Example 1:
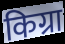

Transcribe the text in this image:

किग्रा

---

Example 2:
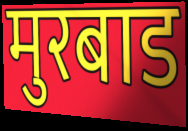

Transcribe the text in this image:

मुरबाड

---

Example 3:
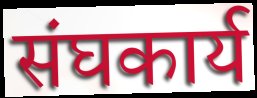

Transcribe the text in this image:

संघकार्य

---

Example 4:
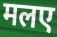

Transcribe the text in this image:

मलए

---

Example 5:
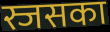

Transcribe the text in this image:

स्जसका